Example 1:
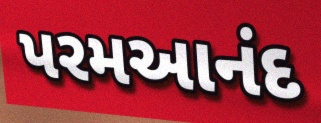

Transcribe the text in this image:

પરમઆનંદ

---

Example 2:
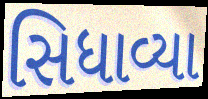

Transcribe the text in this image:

સિધાવ્યા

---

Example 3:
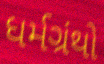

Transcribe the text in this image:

ધર્મગ્રંથો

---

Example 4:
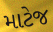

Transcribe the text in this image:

માટેજ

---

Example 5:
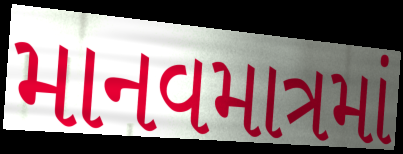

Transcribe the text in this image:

માનવમાત્રમાં